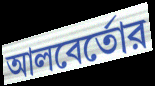
আলবের্তোর